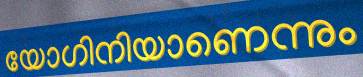
യോഗിനിയാണെന്നും